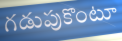
గడుపుకొంటూ